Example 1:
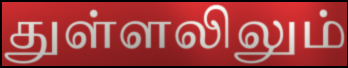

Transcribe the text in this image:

துள்ளலிலும்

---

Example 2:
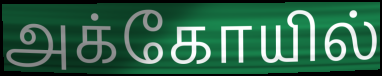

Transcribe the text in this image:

அக்கோயில்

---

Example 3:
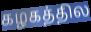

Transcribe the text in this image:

கழகத்தில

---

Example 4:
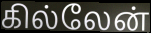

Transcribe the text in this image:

கில்லேன்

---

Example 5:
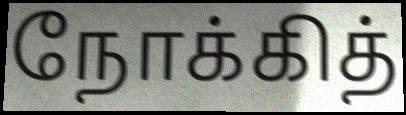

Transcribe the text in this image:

நோக்கித்